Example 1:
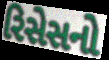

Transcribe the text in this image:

રિસેસનો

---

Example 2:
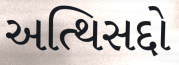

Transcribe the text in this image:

અત્થિસદ્દો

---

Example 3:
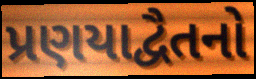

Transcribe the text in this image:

પ્રણયાદ્વૈતનો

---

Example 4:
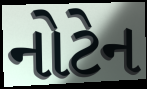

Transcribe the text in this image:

નોટેન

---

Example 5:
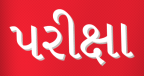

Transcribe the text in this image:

પરીક્ષા